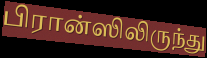
பிரான்ஸிலிருந்து